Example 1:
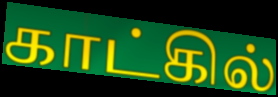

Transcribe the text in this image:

காட்கில்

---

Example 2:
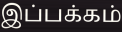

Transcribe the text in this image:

இப்பக்கம்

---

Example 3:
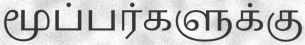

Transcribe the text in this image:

மூப்பர்களுக்கு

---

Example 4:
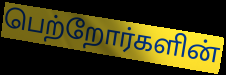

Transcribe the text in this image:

பெற்றோர்களின்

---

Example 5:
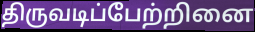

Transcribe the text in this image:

திருவடிப்பேற்றினை